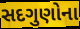
સદગુણોના